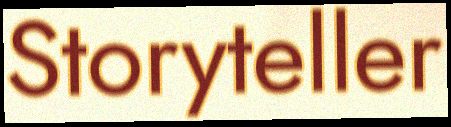
Storyteller